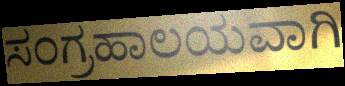
ಸಂಗ್ರಹಾಲಯವಾಗಿ